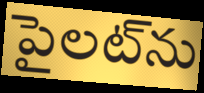
పైలట్‌ను